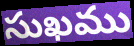
సుఖము